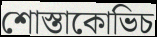
শোস্তাকোভিচ